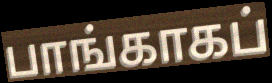
பாங்காகப்